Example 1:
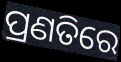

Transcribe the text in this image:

ପ୍ରଣତିରେ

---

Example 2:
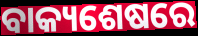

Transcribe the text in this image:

ବାକ୍ୟଶେଷରେ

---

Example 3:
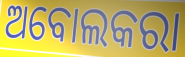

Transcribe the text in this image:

ଅବୋଲକରା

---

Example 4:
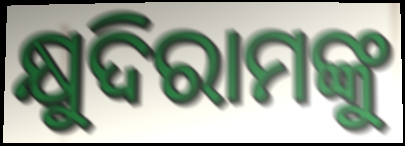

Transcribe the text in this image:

କ୍ଷୁଦିରାମଙ୍କୁ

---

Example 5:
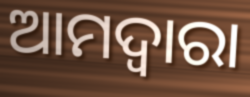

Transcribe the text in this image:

ଆମଦ୍ୱାରା